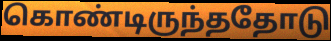
கொண்டிருந்ததோடு